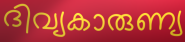
ദിവ്യകാരുണ്യ